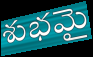
శుభమై